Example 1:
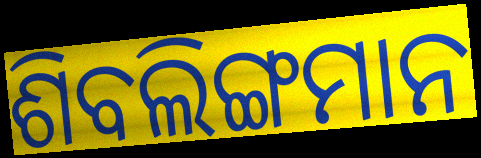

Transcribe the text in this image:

ଶିବଲିଙ୍ଗମାନ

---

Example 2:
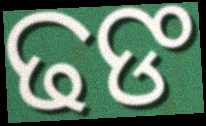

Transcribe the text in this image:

ଢଙ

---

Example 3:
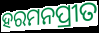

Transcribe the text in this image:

ହରମନପ୍ରୀତ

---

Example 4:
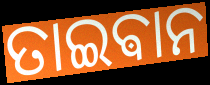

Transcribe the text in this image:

ତାଇଵାନ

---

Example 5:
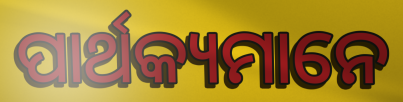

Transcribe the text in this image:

ପାର୍ଥକ୍ୟମାନେ